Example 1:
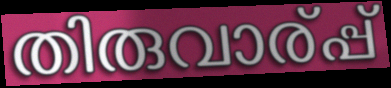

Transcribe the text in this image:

തിരുവാര്പ്പ്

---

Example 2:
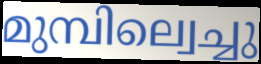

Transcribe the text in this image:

മുമ്പില്വെച്ചു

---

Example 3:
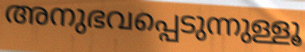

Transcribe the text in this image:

അനുഭവപ്പെടുന്നുള്ളൂ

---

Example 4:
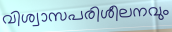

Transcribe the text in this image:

വിശ്വാസപരിശീലനവും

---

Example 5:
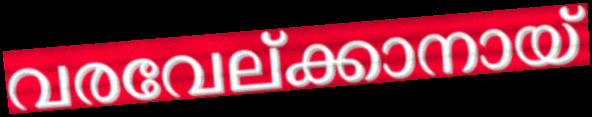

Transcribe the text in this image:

വരവേല്ക്കാനായ്